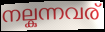
നല്കുന്നവര്